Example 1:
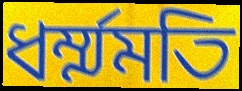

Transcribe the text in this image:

ধর্ম্মমতি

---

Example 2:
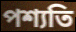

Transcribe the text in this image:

পশ্যতি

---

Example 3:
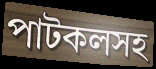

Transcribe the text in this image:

পাটকলসহ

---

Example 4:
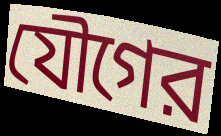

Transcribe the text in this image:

যৌগের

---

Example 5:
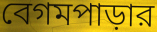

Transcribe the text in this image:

বেগমপাড়ার